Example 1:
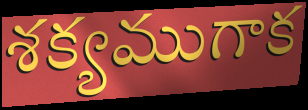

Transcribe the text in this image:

శక్యముగాక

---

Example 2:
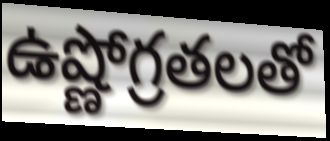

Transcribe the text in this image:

ఉష్ణోగ్రతలతో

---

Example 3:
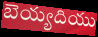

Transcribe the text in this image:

బెయ్యదియు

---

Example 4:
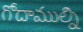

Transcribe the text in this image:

గోదాముల్ని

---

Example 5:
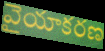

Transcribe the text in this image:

వైయాకరణ